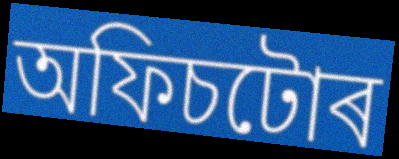
অফিচটোৰ